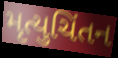
મૃત્યુચિંતન